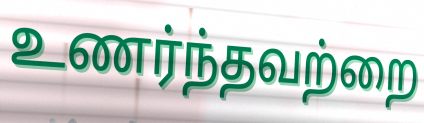
உணர்ந்தவற்றை